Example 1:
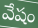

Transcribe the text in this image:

వేషం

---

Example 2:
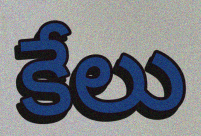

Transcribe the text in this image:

కేలు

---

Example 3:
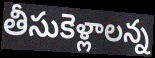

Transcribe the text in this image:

తీసుకెళ్లాలన్న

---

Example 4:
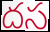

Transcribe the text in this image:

దస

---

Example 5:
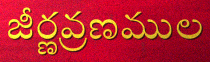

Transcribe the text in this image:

జీర్ణవ్రణముల